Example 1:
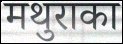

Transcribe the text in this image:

मथुराका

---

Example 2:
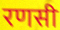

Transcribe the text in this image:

रणसी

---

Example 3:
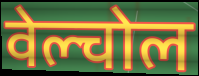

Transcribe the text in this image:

वेल्चोल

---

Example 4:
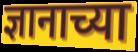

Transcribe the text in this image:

ज्ञानाच्या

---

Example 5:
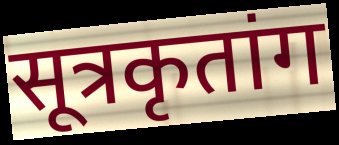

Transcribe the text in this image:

सूत्रकृतांग